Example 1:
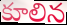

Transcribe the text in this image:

కూలిన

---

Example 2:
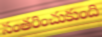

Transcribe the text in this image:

సంతరించుకుంది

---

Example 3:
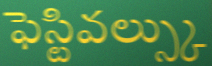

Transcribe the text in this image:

ఫెస్టివల్స్కు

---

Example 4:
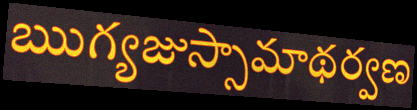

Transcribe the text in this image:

ఋగ్యజుస్సామాథర్వణ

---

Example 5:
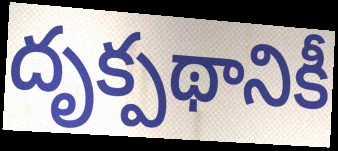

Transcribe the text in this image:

దృక్పథానికీ